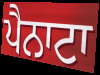
ਪੈਨਾਟਾ